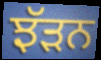
ਝੱੜਨ